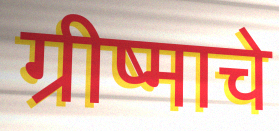
ग्रीष्माचे